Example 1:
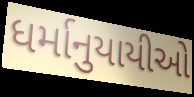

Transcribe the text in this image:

ધર્માનુયાયીઓ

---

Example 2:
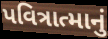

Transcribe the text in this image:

પવિત્રાત્માનું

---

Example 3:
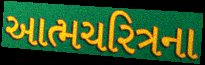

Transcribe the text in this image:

આત્મચરિત્રના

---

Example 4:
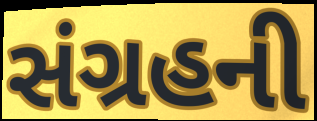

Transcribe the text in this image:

સંગ્રહની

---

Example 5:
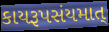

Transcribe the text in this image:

કાયરૂપસંયમાત્